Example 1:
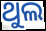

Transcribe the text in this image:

ଥୁଲ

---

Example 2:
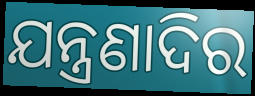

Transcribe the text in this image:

ଯନ୍ତ୍ରଣାଦିର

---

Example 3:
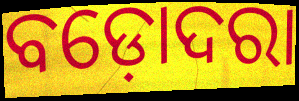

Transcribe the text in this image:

ବଡ଼ୋଦରା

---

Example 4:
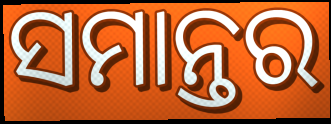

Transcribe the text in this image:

ସମାନ୍ତର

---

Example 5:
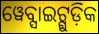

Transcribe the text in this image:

ୱେବ୍ସାଇଟ୍ଗୁଡ଼ିକ